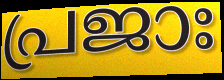
പ്രജാഃ